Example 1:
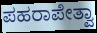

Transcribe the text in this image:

ಪಹರಾಪೇತ್ವಾ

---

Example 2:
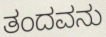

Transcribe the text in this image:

ತಂದವನು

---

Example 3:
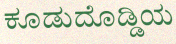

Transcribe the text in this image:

ಕೂಡುದೊಡ್ಡಿಯ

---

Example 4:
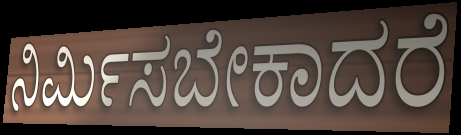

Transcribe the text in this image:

ನಿರ್ಮಿಸಬೇಕಾದರೆ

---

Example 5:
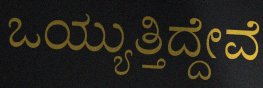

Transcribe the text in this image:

ಒಯ್ಯುತ್ತಿದ್ದೇವೆ